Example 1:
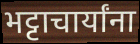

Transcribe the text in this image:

भट्टाचार्यांना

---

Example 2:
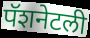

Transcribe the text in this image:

पॅशनेटली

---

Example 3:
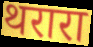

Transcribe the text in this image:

थरारा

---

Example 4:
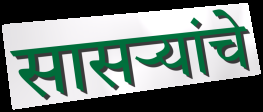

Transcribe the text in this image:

सासर्‍यांचे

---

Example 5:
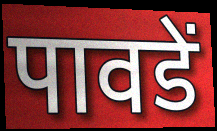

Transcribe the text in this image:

पावडें